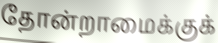
தோன்றாமைக்குக்